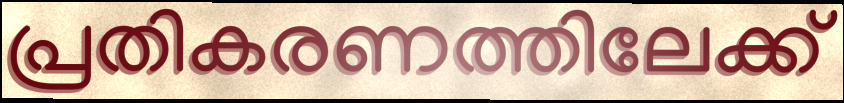
പ്രതികരണത്തിലേക്ക്